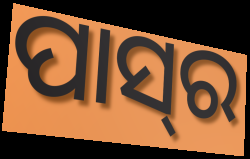
ପାସ୍‍ର